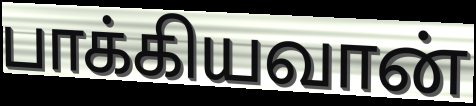
பாக்கியவான்